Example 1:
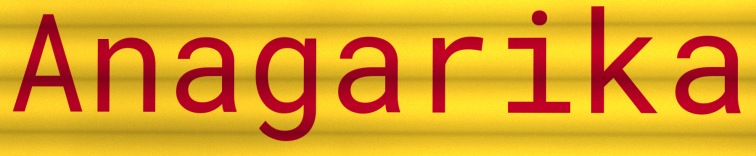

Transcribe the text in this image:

Anagarika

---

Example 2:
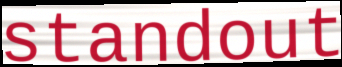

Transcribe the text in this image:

standout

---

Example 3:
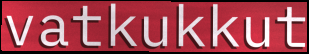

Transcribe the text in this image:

vatkukkut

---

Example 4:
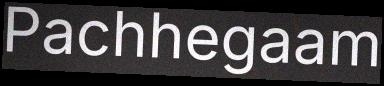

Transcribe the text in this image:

Pachhegaam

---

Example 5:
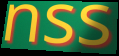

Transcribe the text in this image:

nss